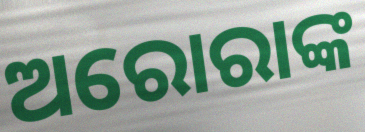
ଅରୋରାଙ୍କ